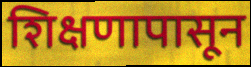
शिक्षणापासून